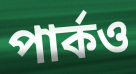
পার্কও